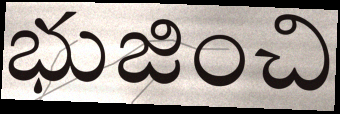
భుజించి